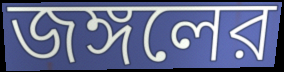
জঙ্গলের